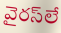
వైరస్‌లే